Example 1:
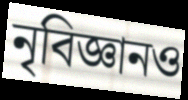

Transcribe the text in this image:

নৃবিজ্ঞানও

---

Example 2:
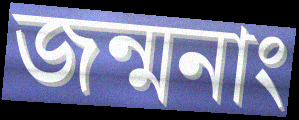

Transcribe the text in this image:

জন্মনাং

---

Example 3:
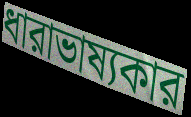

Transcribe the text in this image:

ধারাভাষ্যকার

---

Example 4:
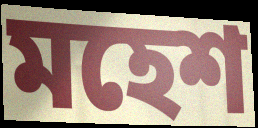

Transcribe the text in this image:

মহেশ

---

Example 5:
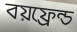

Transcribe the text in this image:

বয়ফ্রেন্ড